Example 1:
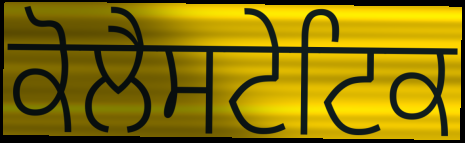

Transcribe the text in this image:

ਕੋਲੈਸਟੇਟਿਕ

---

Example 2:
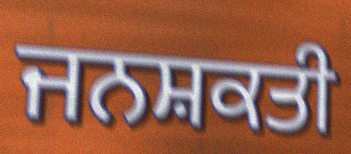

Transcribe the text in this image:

ਜਨਸ਼ਕਤੀ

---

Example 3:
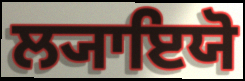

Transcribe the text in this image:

ਲ੍ਯਾਇਯੋ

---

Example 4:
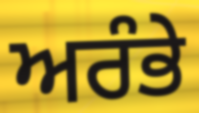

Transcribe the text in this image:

ਅਰੰਭੇ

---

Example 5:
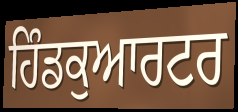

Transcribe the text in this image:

ਹਿੰਡਕੁਆਰਟਰ